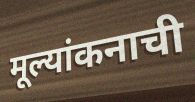
मूल्यांकनाची